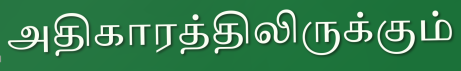
அதிகாரத்திலிருக்கும்